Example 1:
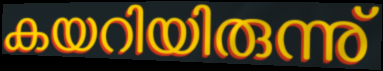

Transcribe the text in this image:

കയറിയിരുന്നു്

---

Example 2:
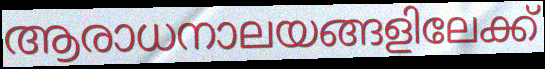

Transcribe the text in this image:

ആരാധനാലയങ്ങളിലേക്ക്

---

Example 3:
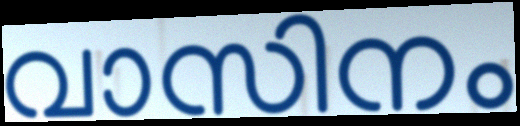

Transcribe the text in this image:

വാസിനം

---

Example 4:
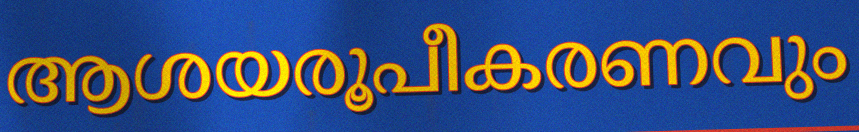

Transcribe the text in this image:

ആശയരൂപീകരണവും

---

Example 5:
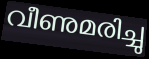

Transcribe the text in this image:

വീണുമരിച്ചു